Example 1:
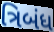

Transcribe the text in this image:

ત્રિબંધ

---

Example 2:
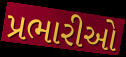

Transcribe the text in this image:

પ્રભારીઓ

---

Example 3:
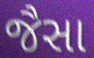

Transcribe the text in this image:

જૈસા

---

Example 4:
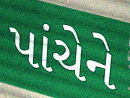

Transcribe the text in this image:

પાંચેને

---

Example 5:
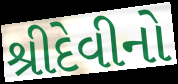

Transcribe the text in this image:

શ્રીદેવીનો